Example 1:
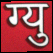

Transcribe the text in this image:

ग्यु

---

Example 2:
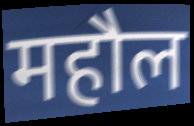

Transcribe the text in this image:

महौल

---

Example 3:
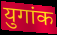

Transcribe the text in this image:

युगांक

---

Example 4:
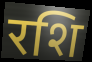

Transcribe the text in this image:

रशि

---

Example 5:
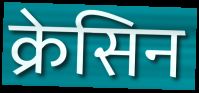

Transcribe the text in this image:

क्रेसिन